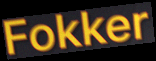
Fokker